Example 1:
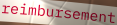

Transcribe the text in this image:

reimbursement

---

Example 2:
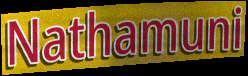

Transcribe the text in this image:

Nathamuni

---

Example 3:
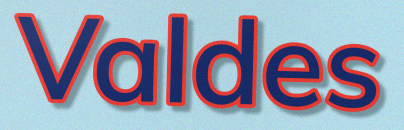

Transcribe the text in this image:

Valdes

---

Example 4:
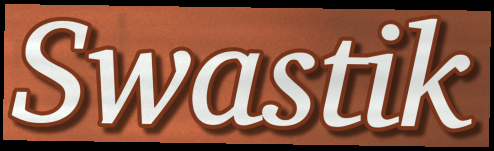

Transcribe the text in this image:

Swastik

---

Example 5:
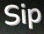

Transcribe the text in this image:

Sip